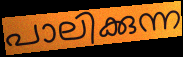
പാലിക്കുന്ന